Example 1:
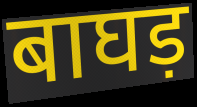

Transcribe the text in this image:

बाघड़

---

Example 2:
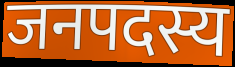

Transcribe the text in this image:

जनपदस्य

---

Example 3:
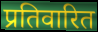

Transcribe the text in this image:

प्रतिवारित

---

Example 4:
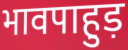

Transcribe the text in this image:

भावपाहुड़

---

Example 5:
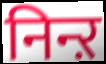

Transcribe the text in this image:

निन्ऱ